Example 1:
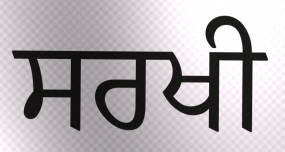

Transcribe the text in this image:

ਸਰਖੀ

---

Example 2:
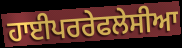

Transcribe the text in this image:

ਹਾਈਪਰਰੇਫਲੇਸੀਆ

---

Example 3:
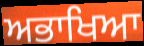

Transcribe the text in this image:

ਅਭਾਖਿਆ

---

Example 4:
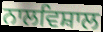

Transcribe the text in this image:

ਨਾਲਵਿਸ਼ਾਲ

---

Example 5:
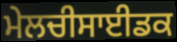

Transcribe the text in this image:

ਮੇਲਚੀਸਾਈਡਕ